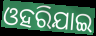
ଓହରିଯାଇ